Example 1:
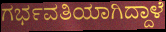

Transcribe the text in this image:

ಗರ್ಭವತಿಯಾಗಿದ್ದಾಳೆ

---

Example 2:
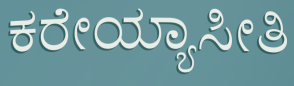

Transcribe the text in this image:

ಕರೇಯ್ಯಾಸೀತಿ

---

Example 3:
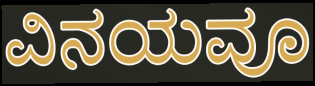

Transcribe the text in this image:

ವಿನಯವೂ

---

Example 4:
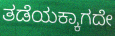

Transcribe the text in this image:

ತಡೆಯಕ್ಕಾಗದೇ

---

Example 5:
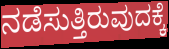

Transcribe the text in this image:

ನಡೆಸುತ್ತಿರುವುದಕ್ಕೆ